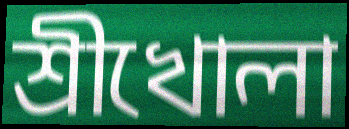
শ্রীখোলা